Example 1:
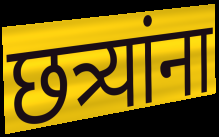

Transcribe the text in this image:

छत्र्यांना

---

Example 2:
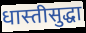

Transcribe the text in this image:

धास्तीसुद्धा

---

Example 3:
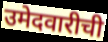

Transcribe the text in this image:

उमेदवारीची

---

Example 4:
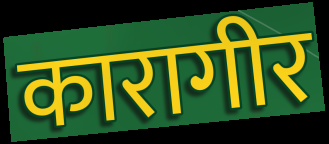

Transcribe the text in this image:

कारागीर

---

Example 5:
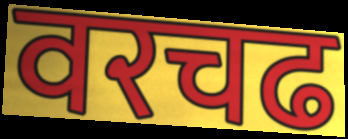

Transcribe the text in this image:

वरचढ